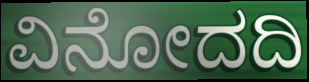
ವಿನೋದದಿ